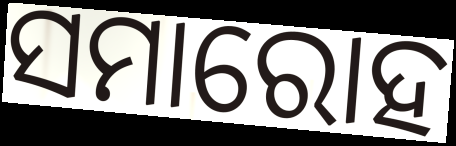
ସମାରୋହ